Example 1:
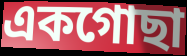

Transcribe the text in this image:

একগোছা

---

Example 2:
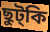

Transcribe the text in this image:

ছুট্কি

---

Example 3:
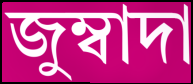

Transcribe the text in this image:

জুম্বাদা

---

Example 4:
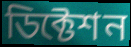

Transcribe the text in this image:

ডিক্টেশন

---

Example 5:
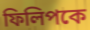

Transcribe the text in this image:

ফিলিপকে